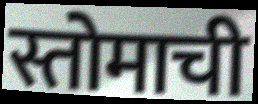
स्तोमाची